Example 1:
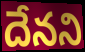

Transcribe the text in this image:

దేనని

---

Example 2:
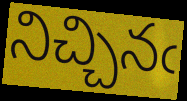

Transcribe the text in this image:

నిచ్చినఁ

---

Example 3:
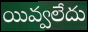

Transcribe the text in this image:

యివ్వలేదు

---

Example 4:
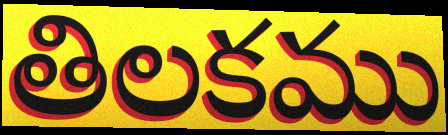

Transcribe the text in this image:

తిలకము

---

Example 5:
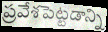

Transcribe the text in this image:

ప్రవేశపెట్టడాన్ని